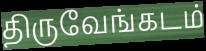
திருவேங்கடம்